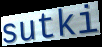
sutki